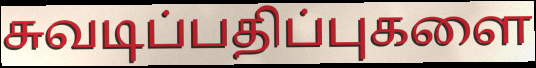
சுவடிப்பதிப்புகளை